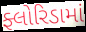
ફ્લોરિડામાં